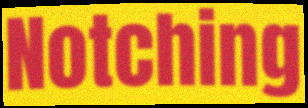
Notching